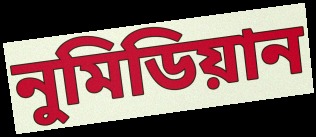
নুমিডিয়ান